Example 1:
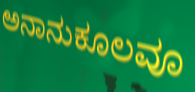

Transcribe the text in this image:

ಅನಾನುಕೂಲವೂ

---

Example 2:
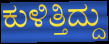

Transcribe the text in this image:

ಕುಳಿತ್ತಿದ್ದು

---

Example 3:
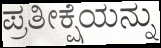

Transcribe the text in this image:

ಪ್ರತೀಕ್ಷೆಯನ್ನು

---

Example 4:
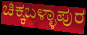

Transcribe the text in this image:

ಚಿಕ್ಕಬಳ್ಳಾಪುರ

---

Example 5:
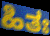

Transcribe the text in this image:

ಹಿತಃ